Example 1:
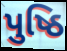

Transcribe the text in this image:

પુષ્ઠિ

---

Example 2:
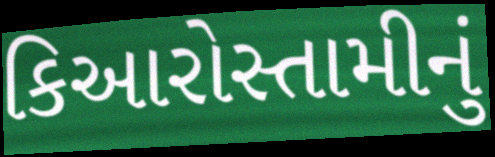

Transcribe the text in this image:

કિઆરોસ્તામીનું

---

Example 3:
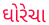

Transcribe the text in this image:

ઘોરેચા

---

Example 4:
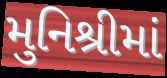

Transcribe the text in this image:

મુનિશ્રીમાં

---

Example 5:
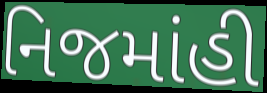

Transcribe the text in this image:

નિજમાંહી